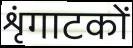
शृंगाटकों